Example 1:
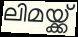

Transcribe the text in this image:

ലിമയ്ക്ക്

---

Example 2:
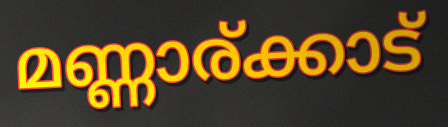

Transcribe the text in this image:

മണ്ണാര്ക്കാട്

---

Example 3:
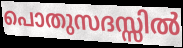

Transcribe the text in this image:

പൊതുസദസ്സിൽ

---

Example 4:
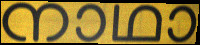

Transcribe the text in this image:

നാഥാ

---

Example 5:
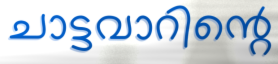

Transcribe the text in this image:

ചാട്ടവാറിന്റെ